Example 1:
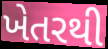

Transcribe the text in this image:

ખેતરથી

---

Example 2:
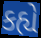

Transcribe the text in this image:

કહ્યે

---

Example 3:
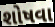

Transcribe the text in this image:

શોષવા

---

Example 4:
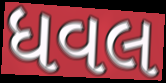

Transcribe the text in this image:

ધવલ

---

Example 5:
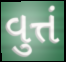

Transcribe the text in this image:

વુત્તં